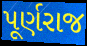
પૂર્ણરાજ